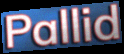
Pallid